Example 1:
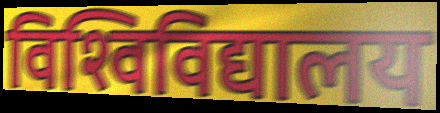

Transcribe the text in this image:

विश्विविद्यालय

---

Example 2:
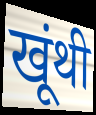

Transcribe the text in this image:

खूंथी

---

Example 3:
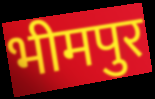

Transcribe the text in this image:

भीमपुर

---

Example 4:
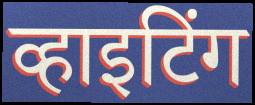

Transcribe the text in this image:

व्हाइटिंग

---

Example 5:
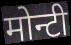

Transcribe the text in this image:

मोन्टी